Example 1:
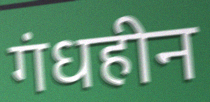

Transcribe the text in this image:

गंधहीन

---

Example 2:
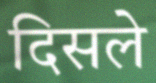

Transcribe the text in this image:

दिसले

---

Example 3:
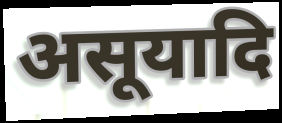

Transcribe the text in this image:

असूयादि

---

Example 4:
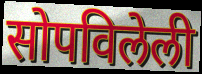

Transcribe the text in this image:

सोपविलेली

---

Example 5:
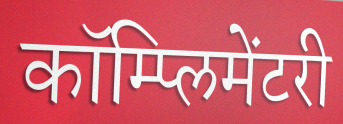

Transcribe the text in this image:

कॉम्प्लिमेंटरी